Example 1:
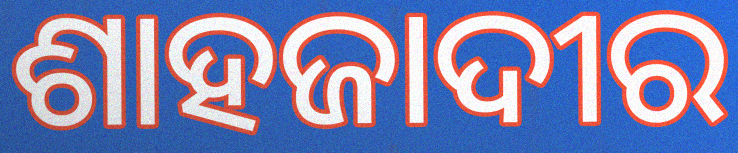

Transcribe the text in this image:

ଶାହଜାଦୀର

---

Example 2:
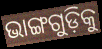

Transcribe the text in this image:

ଭାଙ୍ଗଗୁଡ଼ିକୁ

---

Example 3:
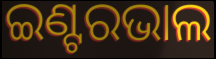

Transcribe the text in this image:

ଇଣ୍ଟରଭାଲ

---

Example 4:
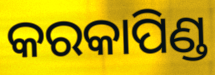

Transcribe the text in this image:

କରକାପିଣ୍ଡ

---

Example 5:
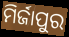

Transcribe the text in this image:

ମିର୍ଜାପୁର